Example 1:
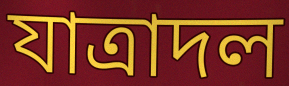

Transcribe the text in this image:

যাত্রাদল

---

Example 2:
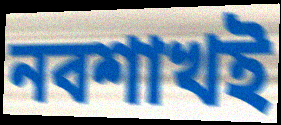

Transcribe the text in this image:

নবশাখই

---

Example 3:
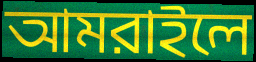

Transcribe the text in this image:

আমরাইলে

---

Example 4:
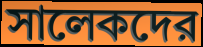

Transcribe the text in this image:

সালেকদের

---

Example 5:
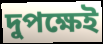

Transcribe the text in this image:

দুপক্ষেই